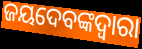
ଜୟଦେବଙ୍କଦ୍ୱାରା